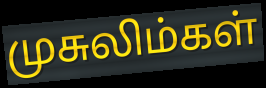
முசுலிம்கள்